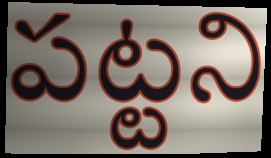
పట్టని